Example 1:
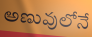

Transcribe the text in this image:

అణువులోనే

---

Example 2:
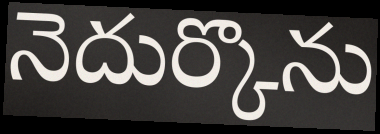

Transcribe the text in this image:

నెదుర్కొను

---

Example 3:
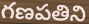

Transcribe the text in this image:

గణపతిని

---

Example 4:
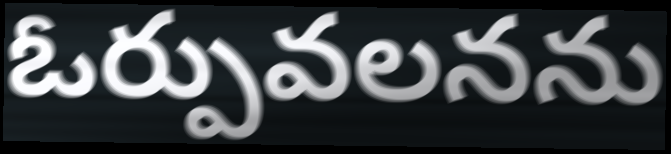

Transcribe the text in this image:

ఓర్పువలనను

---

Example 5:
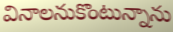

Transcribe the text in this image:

వినాలనుకొంటున్నాను